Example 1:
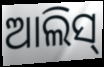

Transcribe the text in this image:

ଆଲିସ୍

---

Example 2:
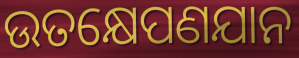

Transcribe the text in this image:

ଉତକ୍ଷେପଣଯାନ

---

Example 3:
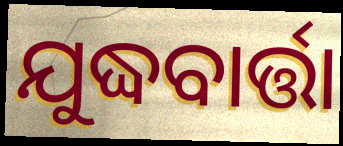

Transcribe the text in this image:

ଯୁଦ୍ଧବାର୍ତ୍ତା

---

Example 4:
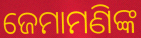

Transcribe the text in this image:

ଜେମାମଣିଙ୍କ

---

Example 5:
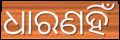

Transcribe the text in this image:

ଧାରଣହିଁ